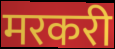
मरकरी